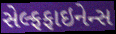
સેલ્ફફાઇનેન્સ